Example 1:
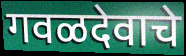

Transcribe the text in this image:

गवळदेवाचे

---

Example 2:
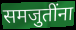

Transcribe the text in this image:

समजुतींना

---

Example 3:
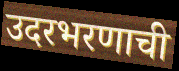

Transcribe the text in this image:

उदरभरणाची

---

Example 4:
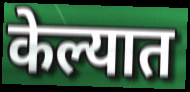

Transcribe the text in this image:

केल्यात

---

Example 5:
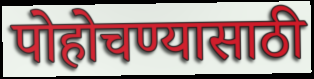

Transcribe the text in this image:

पोहोचण्यासाठी